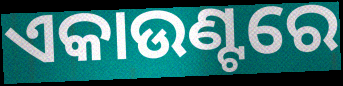
ଏକାଉଣ୍ଟରେ